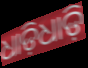
ଧାଡ଼ିଧାଡ଼ି